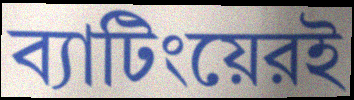
ব্যাটিংয়েরই